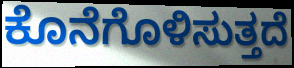
ಕೊನೆಗೊಳಿಸುತ್ತದೆ